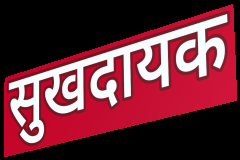
सुखदायक